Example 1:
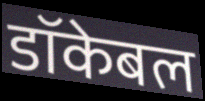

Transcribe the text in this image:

डॉकेबल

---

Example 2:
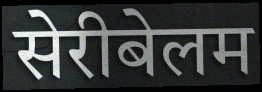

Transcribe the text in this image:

सेरीबेलम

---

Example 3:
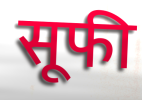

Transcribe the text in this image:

सूफी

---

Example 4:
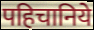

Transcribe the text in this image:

पहिचानिये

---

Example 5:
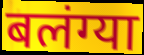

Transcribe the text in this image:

बलंग्या